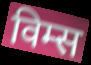
विम्स